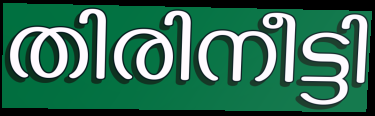
തിരിനീട്ടി